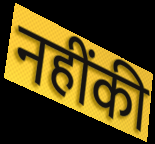
नहींकी